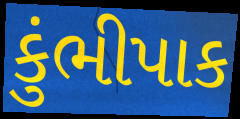
કુંભીપાક